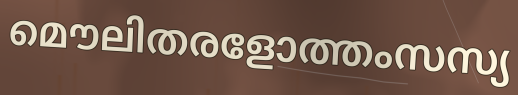
മൌലിതരളോത്തംസസ്യ